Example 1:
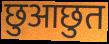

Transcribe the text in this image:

छुआछुत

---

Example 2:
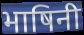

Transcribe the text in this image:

भाषिनी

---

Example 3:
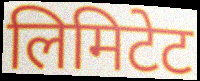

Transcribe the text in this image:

लिमिटेट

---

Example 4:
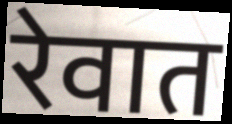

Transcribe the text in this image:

रेवात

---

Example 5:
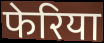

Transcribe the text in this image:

फेरिया